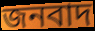
জনবাদ